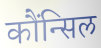
कौंन्सिल